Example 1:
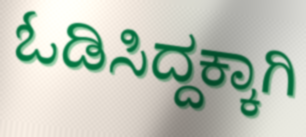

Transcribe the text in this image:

ಓಡಿಸಿದ್ದಕ್ಕಾಗಿ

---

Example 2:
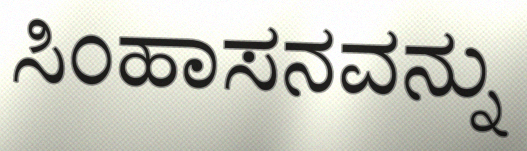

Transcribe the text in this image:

ಸಿಂಹಾಸನವನ್ನು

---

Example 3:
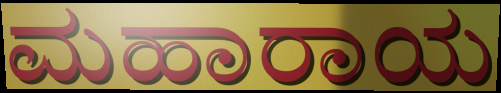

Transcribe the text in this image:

ಮಹಾರಾಯ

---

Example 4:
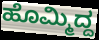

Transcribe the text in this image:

ಹೊಮ್ಮಿದ್ದ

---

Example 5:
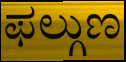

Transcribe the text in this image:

ಫಲ್ಗುಣ